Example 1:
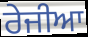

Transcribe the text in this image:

ਰੇਜੀਆ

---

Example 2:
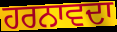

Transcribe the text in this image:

ਹਰਨਾਵਦਾ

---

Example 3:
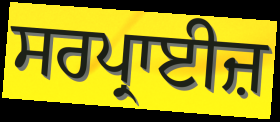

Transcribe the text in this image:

ਸਰਪ੍ਰਾਈਜ਼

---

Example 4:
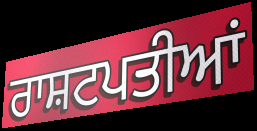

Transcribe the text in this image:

ਰਾਸ਼ਟਪਤੀਆਂ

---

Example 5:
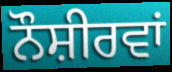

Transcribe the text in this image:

ਨੌਸ਼ੀਰਵਾਂ